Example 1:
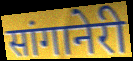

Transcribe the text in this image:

सांगानेरी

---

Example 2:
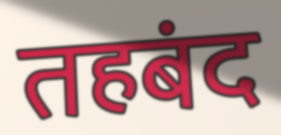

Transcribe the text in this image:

तहबंद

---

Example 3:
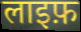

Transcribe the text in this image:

लाइफ़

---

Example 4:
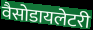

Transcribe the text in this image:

वैसोडायलेटरी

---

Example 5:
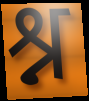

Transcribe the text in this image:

श्न